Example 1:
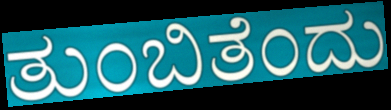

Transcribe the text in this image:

ತುಂಬಿತೆಂದು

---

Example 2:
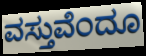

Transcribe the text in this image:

ವಸ್ತುವೆಂದೂ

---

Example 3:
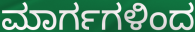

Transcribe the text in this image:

ಮಾರ್ಗಗಳಿಂದ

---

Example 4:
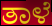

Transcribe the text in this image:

ತಾಳೆ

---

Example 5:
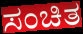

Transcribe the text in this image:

ಸಂಚಿತ